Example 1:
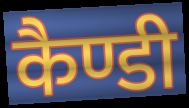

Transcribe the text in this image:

कैण्डी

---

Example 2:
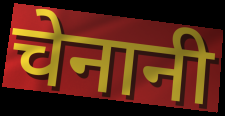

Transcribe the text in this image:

चेनानी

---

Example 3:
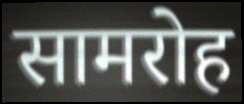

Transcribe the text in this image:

सामरोह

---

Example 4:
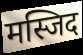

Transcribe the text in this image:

मस्जिद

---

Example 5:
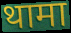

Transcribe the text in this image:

थामा